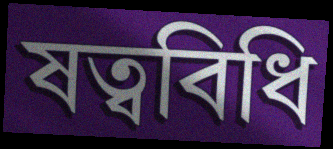
ষত্ববিধি